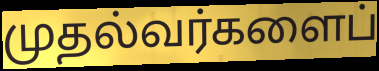
முதல்வர்களைப்